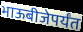
भाऊबीजेपर्यंत